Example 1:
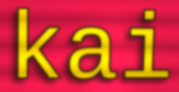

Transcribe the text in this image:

kai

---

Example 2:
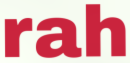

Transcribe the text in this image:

rah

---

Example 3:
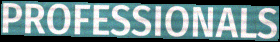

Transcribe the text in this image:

PROFESSIONALS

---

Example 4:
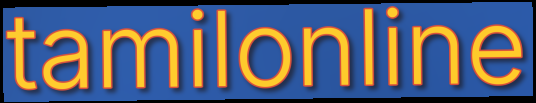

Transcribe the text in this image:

tamilonline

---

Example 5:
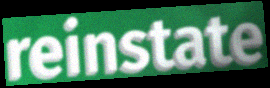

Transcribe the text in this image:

reinstate